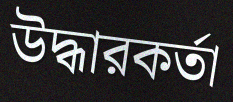
উদ্ধারকর্তা